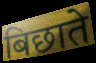
बिछाते